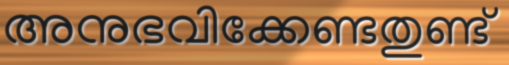
അനുഭവിക്കേണ്ടതുണ്ട്